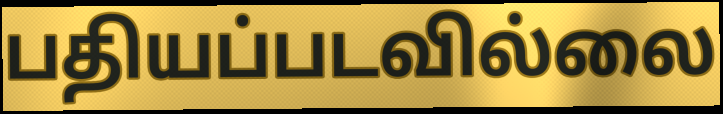
பதியப்படவில்லை